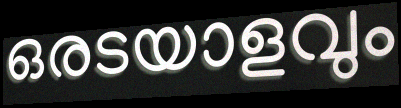
ഒരടയാളവും